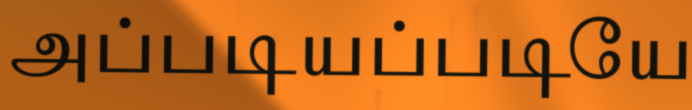
அப்படியப்படியே